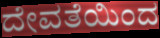
ದೇವತೆಯಿಂದ